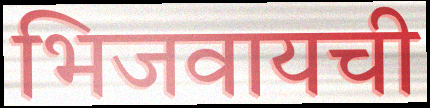
भिजवायची